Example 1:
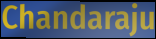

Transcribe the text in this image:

Chandaraju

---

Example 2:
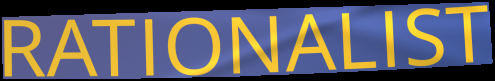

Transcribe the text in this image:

RATIONALIST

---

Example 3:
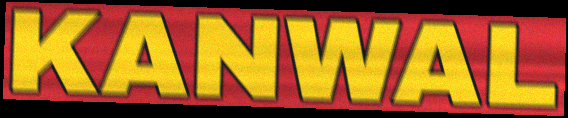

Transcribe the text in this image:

KANWAL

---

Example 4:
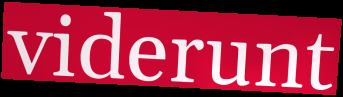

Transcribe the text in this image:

viderunt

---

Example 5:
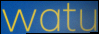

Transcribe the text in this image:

watu